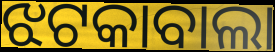
ଝଟକାବାଲା